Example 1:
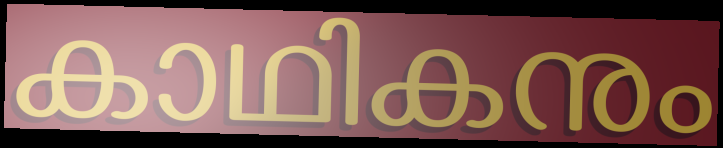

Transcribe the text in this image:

കാഥികനും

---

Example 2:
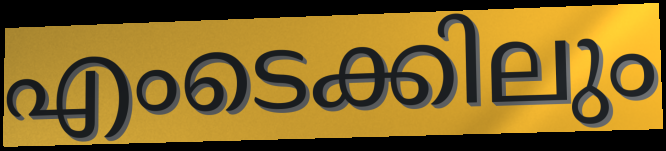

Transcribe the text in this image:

എംടെക്കിലും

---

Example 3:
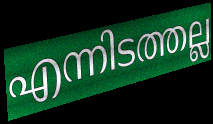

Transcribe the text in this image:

എന്നിടത്തല്ല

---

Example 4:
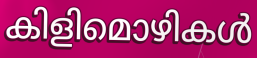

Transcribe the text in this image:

കിളിമൊഴികൾ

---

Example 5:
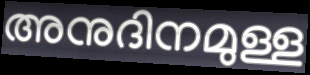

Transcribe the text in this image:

അനുദിനമുള്ള